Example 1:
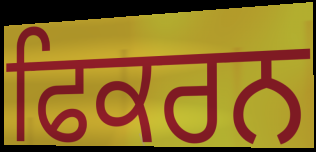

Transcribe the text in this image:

ਫਿਕਰਨ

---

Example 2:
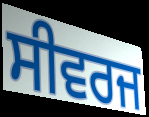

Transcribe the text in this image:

ਸੀਵਰਜ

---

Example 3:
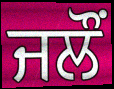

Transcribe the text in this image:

ਜਲੌਂ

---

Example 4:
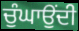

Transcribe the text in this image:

ਚੁੰਘਾਉਂਦੀ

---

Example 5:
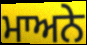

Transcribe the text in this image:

ਮਾਅਨੇ